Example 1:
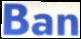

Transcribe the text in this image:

Ban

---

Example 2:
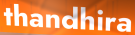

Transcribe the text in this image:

thandhira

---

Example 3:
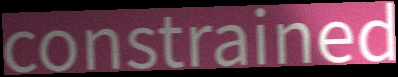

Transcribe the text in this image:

constrained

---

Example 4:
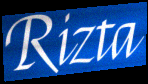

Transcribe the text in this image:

Rizta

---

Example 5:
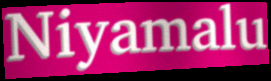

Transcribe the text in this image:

Niyamalu